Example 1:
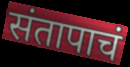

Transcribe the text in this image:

संतापाचं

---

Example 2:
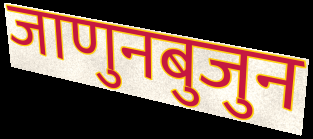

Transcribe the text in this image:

जाणुनबुजुन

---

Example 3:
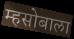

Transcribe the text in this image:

म्हसोबाला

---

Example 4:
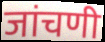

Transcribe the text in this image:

जांचणी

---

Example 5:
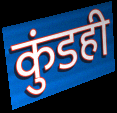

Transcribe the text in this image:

कुंडही